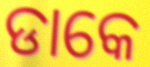
ଡାକେ